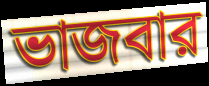
ভাজবার